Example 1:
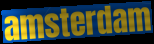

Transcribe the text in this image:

amsterdam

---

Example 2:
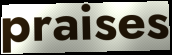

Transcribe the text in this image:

praises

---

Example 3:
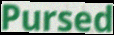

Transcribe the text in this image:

Pursed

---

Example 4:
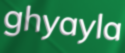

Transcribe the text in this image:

ghyayla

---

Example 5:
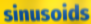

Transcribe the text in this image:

sinusoids